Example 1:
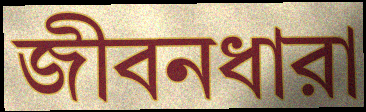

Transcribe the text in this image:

জীবনধারা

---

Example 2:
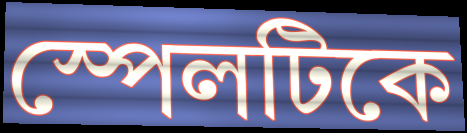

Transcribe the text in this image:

স্পেলটিকে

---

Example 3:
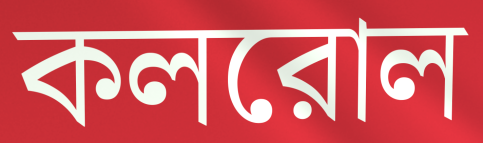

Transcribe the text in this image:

কলরোল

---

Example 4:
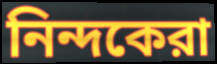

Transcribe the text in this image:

নিন্দকেরা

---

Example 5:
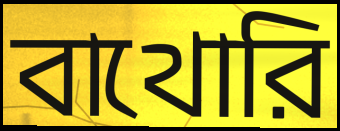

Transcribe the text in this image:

বাথোরি